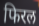
फिरल